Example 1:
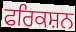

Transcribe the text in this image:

ਫਰਿਕਸ਼ਨ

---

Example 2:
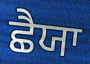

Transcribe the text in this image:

ਛੈਯਾ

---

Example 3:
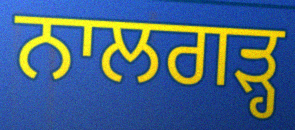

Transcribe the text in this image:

ਨਾਲਗੜ੍ਹ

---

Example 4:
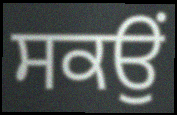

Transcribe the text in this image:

ਸਕਉਂ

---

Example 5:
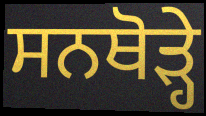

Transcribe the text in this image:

ਸਨਥੋੜ੍ਹੇ